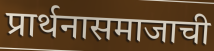
प्रार्थनासमाजाची